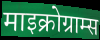
माइक्रोग्राम्स